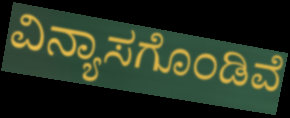
ವಿನ್ಯಾಸಗೊಂಡಿವೆ